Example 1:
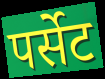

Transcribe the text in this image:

पर्सेट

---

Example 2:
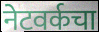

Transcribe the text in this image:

नेटवर्कचा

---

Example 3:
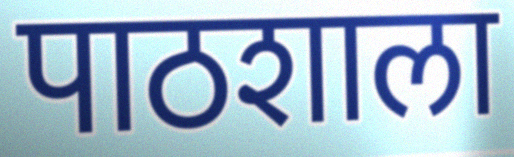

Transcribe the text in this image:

पाठशाला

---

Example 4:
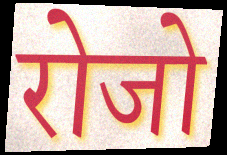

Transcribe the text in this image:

रोजो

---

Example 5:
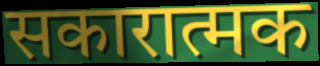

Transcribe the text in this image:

सकारात्मक